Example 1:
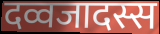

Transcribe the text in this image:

दव्वजादस्स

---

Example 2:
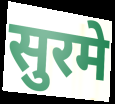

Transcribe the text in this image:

सुरमे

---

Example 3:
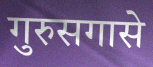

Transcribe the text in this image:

गुरुसगासे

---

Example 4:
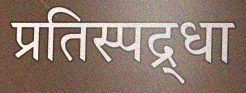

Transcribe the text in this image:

प्रतिस्पद्र्धा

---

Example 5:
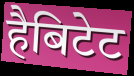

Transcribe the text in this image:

हैबिटेट